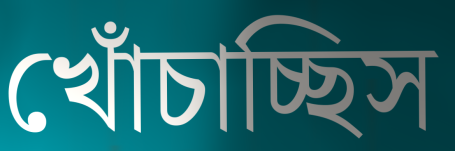
খোঁচাচ্ছিস